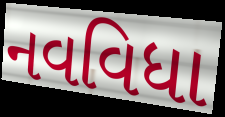
નવવિધા